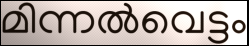
മിന്നൽവെട്ടം